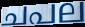
ചപല